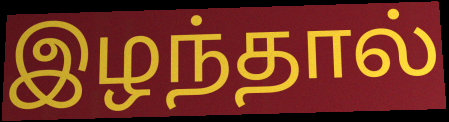
இழந்தால்